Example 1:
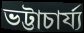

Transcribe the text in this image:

ভট্টাচাৰ্য্য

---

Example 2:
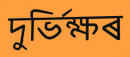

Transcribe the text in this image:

দুৰ্ভিক্ষৰ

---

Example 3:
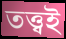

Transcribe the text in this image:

তত্ত্বই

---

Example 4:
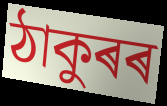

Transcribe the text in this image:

ঠাকুৰৰ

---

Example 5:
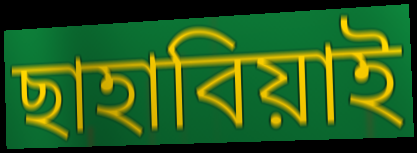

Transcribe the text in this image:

ছাহাবিয়াই